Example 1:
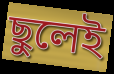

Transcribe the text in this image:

ছুলেই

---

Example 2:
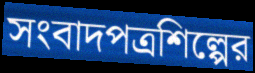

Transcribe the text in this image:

সংবাদপত্রশিল্পের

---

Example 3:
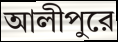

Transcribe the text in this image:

আলীপুরে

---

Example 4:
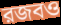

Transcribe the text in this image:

রজবও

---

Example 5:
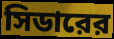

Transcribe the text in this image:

সিডারের